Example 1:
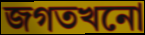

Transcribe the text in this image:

জগতখনো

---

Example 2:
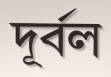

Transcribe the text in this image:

দূৰ্বল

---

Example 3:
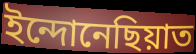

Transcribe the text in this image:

ইন্দোনেছিয়াত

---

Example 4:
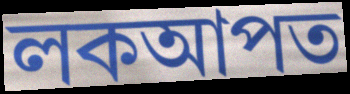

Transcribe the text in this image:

লকআপত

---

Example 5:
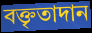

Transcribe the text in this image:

বক্তৃতাদান